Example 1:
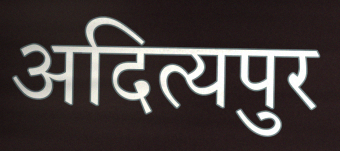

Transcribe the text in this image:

अदित्यपुर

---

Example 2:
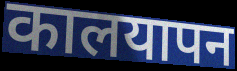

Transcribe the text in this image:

कालयापन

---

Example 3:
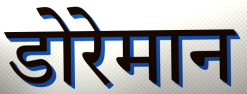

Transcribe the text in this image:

डोरेमान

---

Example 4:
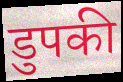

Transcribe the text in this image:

डुपकी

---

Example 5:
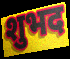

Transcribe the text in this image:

शुभद